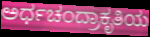
ಅರ್ಧಚಂದ್ರಾಕೃತಿಯ